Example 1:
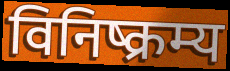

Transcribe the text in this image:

विनिष्क्रम्य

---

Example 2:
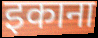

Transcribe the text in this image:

इकाना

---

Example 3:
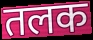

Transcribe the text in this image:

तलक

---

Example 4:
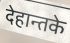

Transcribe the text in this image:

देहान्तके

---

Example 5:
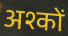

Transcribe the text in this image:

अश्कों